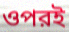
ওপরই